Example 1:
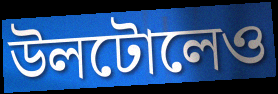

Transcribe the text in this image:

উলটোলেও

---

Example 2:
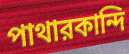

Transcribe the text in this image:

পাথারকান্দি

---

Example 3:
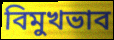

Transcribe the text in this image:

বিমুখভাব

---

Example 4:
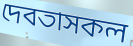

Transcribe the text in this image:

দেবতাসকল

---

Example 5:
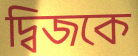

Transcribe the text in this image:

দ্বিজকে